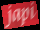
japi